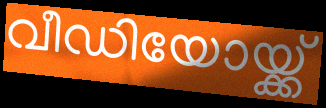
വീഡിയോയ്ക്ക്